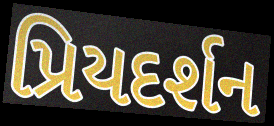
પ્રિયદર્શન